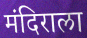
मंदिराला